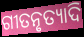
ଗୀତନୃତ୍ୟାଦି